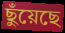
ছুঁয়েছে